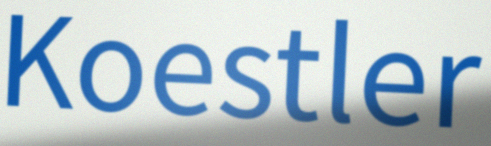
Koestler